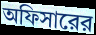
অফিসারের